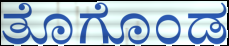
ತೊಗೊಂಡ